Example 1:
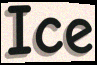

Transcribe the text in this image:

Ice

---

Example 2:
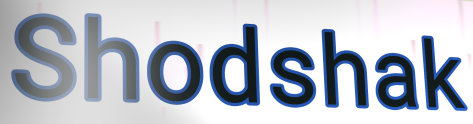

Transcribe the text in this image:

Shodshak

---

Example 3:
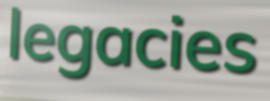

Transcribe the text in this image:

legacies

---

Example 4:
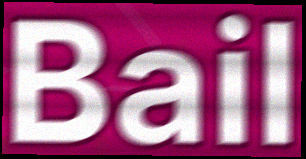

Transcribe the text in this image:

Bail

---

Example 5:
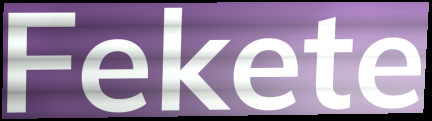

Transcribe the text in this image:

Fekete